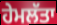
ਹੇਮਲੱਤਾ